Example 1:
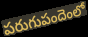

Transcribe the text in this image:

పరుగుపందెంలో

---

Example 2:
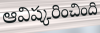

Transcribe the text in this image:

ఆవిష్కరించింది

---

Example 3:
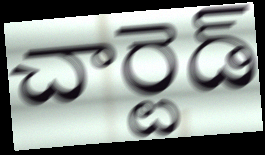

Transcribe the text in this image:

చార్టెడ్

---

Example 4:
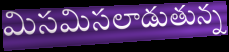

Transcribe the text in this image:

మిసమిసలాడుతున్న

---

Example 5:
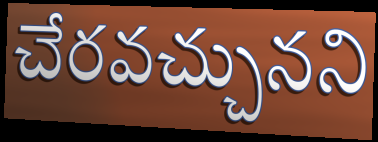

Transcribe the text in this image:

చేరవచ్చునని